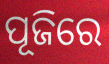
ପୂଜିରେ